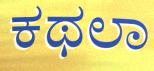
ಕಥಲಾ